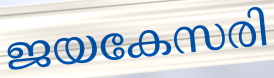
ജയകേസരി